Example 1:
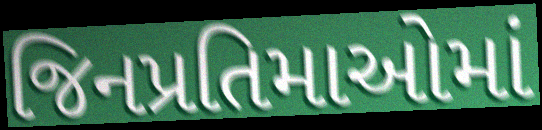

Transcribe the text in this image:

જિનપ્રતિમાઓમાં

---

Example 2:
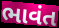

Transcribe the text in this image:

ભાવંત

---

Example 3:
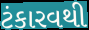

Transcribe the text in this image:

ટંકારવથી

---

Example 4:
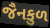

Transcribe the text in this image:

જૈનકુળ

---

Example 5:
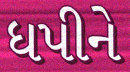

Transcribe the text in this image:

ધપીને